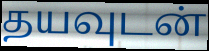
தயவுடன்